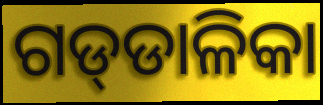
ଗଡ୍‍ଡାଳିକା